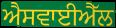
ਐਸਵਾਈਐੱਲ